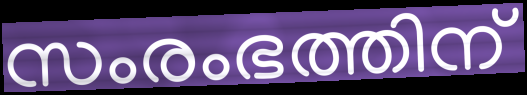
സംരംഭത്തിന്